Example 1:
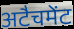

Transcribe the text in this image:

अटैचमेंट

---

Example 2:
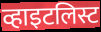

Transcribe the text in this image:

व्हाइटलिस्ट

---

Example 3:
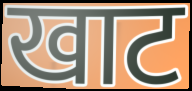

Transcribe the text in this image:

खाट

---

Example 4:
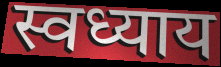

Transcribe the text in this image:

स्वध्याय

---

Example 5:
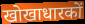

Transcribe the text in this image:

खोखाधारकों